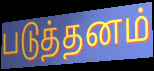
படுத்தனம்